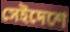
সেইদেশে